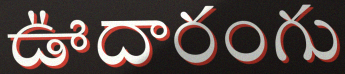
ఊదారంగు